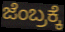
ಜೆಂಬ್ರಕ್ಕೆ